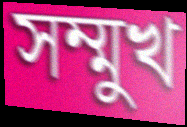
সম্মুখ